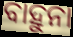
ବାହୁନା